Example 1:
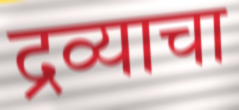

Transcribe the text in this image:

द्रव्याचा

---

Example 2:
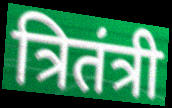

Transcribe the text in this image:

त्रितंत्री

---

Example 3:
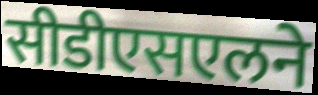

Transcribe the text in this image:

सीडीएसएलने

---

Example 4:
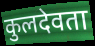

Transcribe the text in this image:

कुलदेवता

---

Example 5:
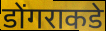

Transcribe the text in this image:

डोंगराकडे